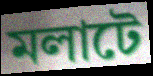
মলাটে